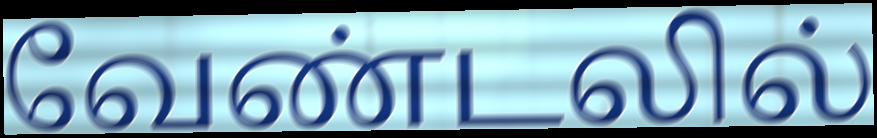
வேண்டலில்